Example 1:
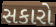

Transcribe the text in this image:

સકારો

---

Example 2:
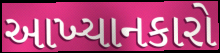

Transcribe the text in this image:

આખ્યાનકારો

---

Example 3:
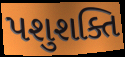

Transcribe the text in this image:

પશુશક્તિ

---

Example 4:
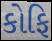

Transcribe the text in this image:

કોફિ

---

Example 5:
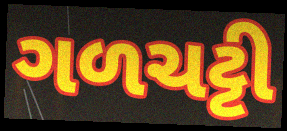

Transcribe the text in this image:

ગળચટ્ટી